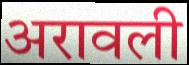
अरावली